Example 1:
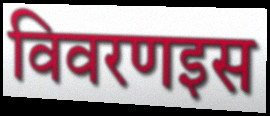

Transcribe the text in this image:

विवरणइस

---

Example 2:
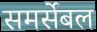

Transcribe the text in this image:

समर्सेबल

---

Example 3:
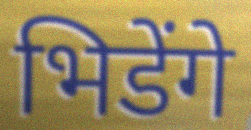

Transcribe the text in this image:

भिडेंगे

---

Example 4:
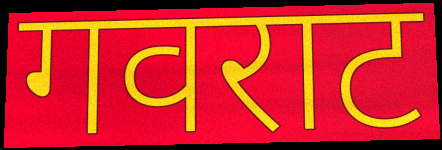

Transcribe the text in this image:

गवराट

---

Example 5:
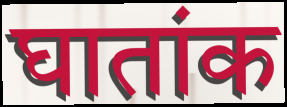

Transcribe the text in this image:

घातांक